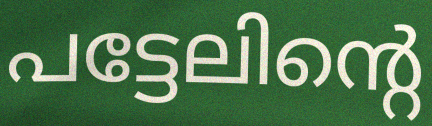
പട്ടേലിന്റെ